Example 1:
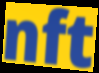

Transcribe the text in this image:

nft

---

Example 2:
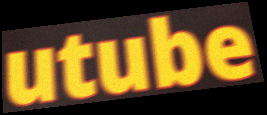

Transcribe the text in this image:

utube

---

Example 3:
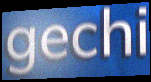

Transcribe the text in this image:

gechi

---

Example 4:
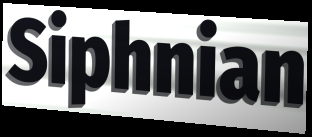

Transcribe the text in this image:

Siphnian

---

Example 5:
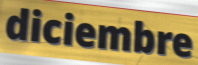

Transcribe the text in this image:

diciembre